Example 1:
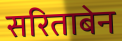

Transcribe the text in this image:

सरिताबेन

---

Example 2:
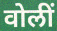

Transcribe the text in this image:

वोलीं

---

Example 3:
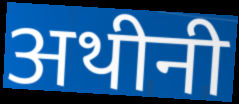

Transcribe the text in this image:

अथीनी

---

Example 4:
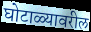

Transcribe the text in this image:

घोटाळ्यावरील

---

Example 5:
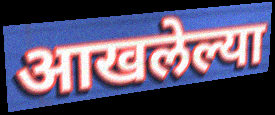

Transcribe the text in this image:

आखलेल्या